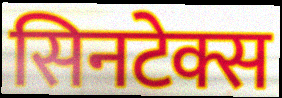
सिनटेक्स